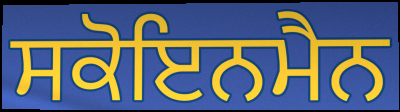
ਸਕੋਇਨਮੈਨ